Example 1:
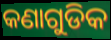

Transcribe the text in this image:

କଣାଗୁଡିକ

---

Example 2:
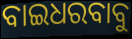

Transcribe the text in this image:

ବାଇଧରବାବୁ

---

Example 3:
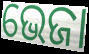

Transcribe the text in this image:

ଭେଜା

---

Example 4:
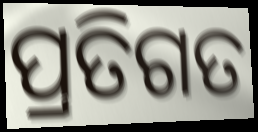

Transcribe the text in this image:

ପ୍ରତିଗତ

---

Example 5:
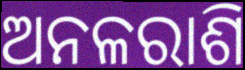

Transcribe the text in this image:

ଅନଳରାଶି